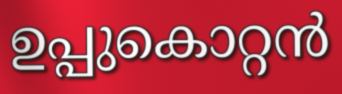
ഉപ്പുകൊറ്റൻ